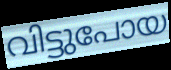
വിട്ടുപോയ